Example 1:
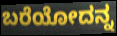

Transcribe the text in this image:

ಬರೆಯೋದನ್ನ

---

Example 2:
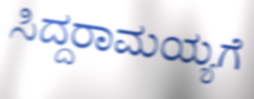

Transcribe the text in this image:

ಸಿದ್ದರಾಮಯ್ಯಗೆ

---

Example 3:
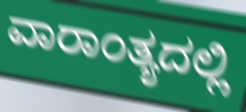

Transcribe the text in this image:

ವಾರಾಂತ್ಯದಲ್ಲಿ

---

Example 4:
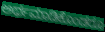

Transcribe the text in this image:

ಅರ್ಥಮಾಡಿಕೊಂಡರೂ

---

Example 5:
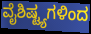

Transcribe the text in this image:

ವೈಶಿಷ್ಟ್ಯಗಳಿಂದ